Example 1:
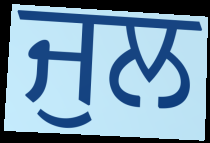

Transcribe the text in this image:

ਜੁਲ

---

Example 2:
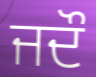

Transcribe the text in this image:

ਜਦੌ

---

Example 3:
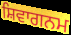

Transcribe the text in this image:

ਸ਼ਿਵਾਗਨਮ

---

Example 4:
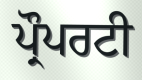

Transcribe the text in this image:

ਪ੍ਰੌਪਰਟੀ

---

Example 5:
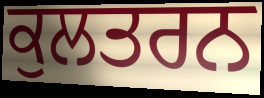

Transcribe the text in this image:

ਕੁਲਤਰਨ